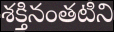
శక్తినంతటిని